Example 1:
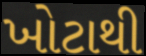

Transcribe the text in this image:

ખોટાથી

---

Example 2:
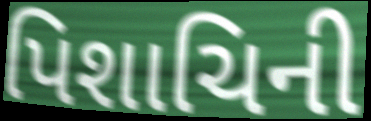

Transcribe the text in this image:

પિશાચિની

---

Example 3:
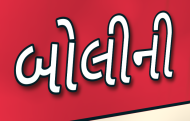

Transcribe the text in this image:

બોલીની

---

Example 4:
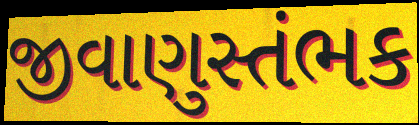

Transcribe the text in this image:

જીવાણુસ્તંભક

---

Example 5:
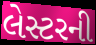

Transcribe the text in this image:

લેસ્ટરની